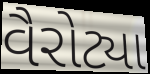
વૈરોટ્યા